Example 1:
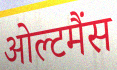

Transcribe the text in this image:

ओल्टमैंस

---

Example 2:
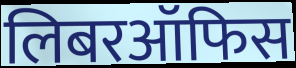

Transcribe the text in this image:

लिबरऑफिस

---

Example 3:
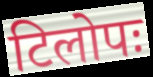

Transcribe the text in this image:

टिलोपः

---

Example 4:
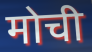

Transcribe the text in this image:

मोची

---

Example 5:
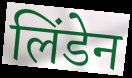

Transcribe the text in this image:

लिंडेन